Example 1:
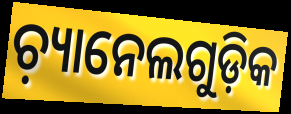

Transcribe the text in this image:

ଚ଼୍ୟାନେଲଗୁଡ଼ିକ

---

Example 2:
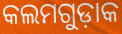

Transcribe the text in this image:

କଲମଗୁଡ଼ାକ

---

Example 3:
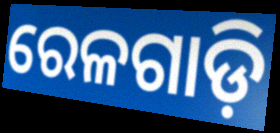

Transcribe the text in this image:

ରେଳଗାଡ଼ି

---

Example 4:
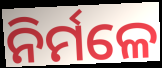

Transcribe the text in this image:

ନିର୍ମଳେ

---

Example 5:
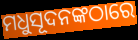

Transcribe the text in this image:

ମଧୁସୂଦନଙ୍କଠାରେ